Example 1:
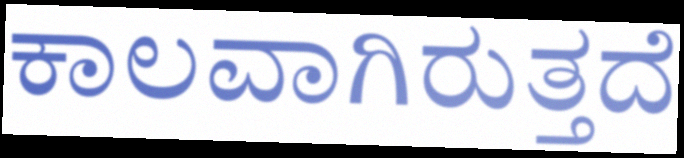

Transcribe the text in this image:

ಕಾಲವಾಗಿರುತ್ತದೆ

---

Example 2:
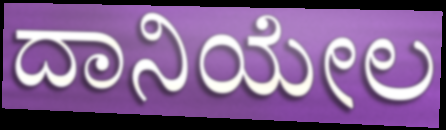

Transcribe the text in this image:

ದಾನಿಯೇಲ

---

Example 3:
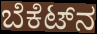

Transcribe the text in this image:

ಬೆಕೆಟ್‌ನ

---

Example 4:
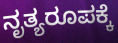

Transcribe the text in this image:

ನೃತ್ಯರೂಪಕ್ಕೆ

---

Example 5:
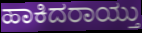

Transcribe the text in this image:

ಹಾಕಿದರಾಯ್ತು